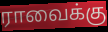
ராவைக்கு